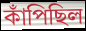
কাঁপিছিল